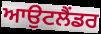
ਆਉਟਲੈਂਡਰ